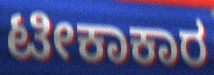
ಟೀಕಾಕಾರ